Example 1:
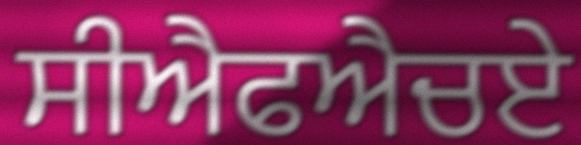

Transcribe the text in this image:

ਸੀਐਫਐਚਏ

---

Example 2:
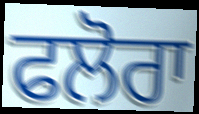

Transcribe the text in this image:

ਫਲੋਰਾ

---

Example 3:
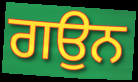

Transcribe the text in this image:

ਗਉਨ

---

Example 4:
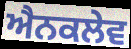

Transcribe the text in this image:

ਐਨਕਲੇਵ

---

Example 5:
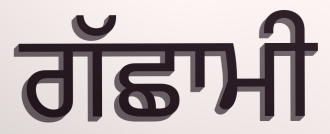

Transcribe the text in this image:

ਗੱਛਾਮੀ